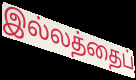
இல்லத்தைப்